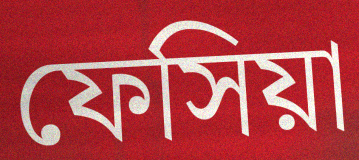
ফেসিয়া